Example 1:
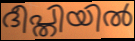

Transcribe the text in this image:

ദീപ്തിയിൽ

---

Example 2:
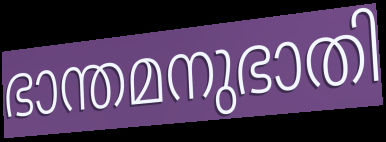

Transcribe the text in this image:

ഭാന്തമനുഭാതി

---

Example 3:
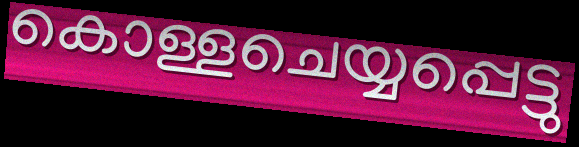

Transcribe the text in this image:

കൊള്ളചെയ്യപ്പെട്ടു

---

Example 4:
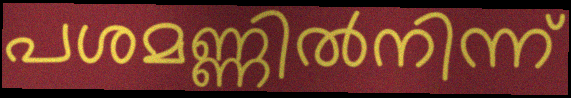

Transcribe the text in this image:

പശമണ്ണിൽനിന്ന്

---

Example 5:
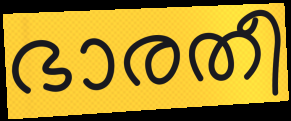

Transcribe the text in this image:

ഭാരതീ